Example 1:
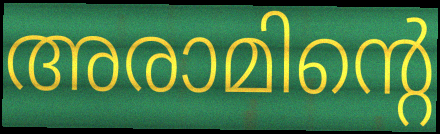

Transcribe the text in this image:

അരാമിന്റെ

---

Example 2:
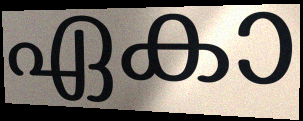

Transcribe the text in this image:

ഏകാ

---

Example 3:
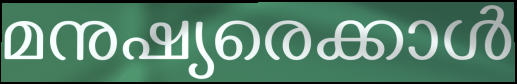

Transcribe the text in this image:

മനുഷ്യരെക്കാൾ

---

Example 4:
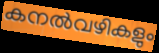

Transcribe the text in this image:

കനൽവഴികളും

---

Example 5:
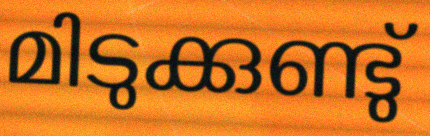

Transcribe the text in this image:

മിടുക്കുണ്ടു്